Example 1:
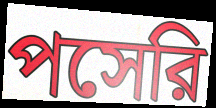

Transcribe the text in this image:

পসেরি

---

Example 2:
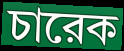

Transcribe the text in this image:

চারেক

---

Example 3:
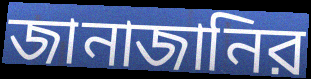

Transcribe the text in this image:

জানাজানির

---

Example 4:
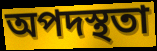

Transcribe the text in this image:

অপদস্থতা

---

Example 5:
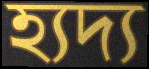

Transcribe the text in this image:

হ্যদ্য